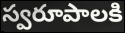
స్వరూపాలకి